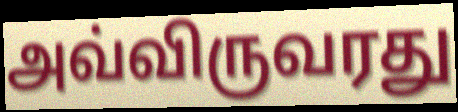
அவ்விருவரது